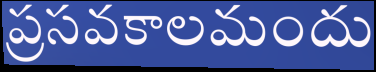
ప్రసవకాలమందు